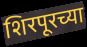
शिरपूरच्या